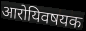
आरोयिवषयक